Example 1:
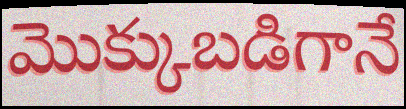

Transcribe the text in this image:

మొక్కుబడిగానే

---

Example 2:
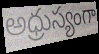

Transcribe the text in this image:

అధ్రుస్యంగా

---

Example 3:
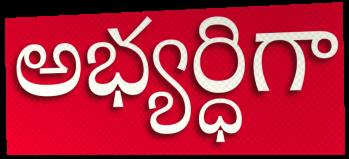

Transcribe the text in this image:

అభ్యర్ధిగా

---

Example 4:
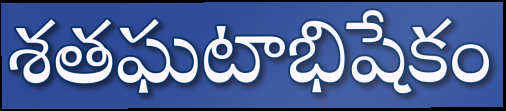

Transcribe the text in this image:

శతఘటాభిషేకం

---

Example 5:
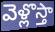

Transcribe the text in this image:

వెళ్లొస్తా